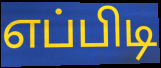
எப்பிடி